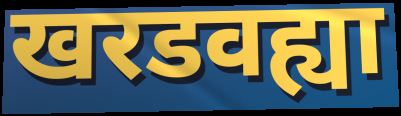
खरडवह्या